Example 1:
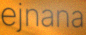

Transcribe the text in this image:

ejnana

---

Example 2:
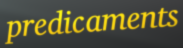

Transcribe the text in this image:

predicaments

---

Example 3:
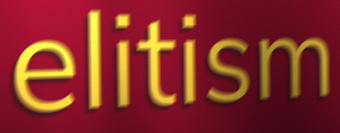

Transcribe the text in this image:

elitism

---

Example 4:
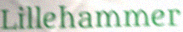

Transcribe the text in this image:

Lillehammer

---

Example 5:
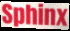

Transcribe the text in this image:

Sphinx